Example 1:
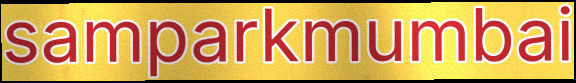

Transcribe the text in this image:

samparkmumbai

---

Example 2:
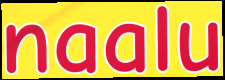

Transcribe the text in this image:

naalu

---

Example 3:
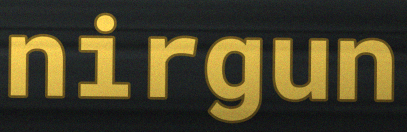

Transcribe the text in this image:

nirgun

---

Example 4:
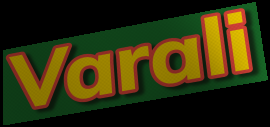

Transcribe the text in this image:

Varali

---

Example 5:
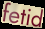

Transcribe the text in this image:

fetid